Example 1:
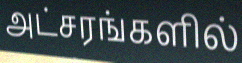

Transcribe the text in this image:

அட்சரங்களில்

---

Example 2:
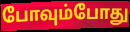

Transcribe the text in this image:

போவும்போது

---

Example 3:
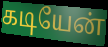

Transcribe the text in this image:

கடியேன்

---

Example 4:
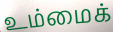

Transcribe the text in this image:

உம்மைக்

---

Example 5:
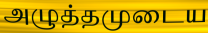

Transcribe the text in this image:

அழுத்தமுடைய